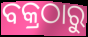
ବକ୍ରଠାରୁ